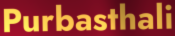
Purbasthali